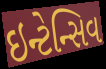
ઇન્ટેન્સિવ